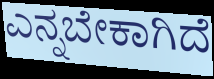
ಎನ್ನಬೇಕಾಗಿದೆ